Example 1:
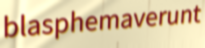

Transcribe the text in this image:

blasphemaverunt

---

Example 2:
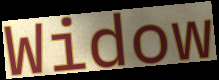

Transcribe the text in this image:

Widow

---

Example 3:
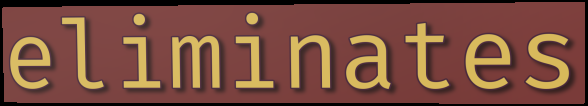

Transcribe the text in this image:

eliminates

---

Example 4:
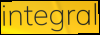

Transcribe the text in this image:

integral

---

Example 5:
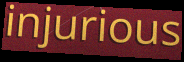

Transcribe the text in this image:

injurious